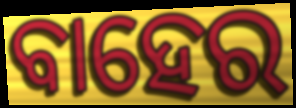
ବାହେର